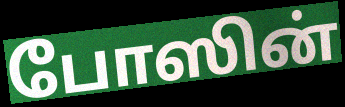
போஸின்